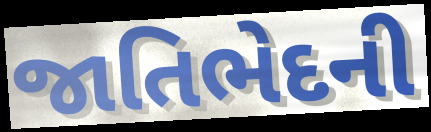
જાતિભેદની